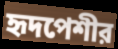
হৃদপেশীর